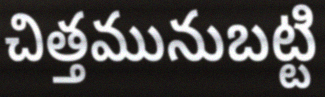
చిత్తమునుబట్టి